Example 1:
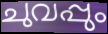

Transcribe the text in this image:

ചുവപ്പും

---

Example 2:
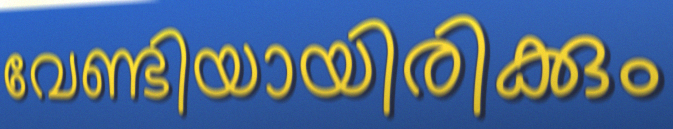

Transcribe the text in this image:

വേണ്ടിയായിരിക്കും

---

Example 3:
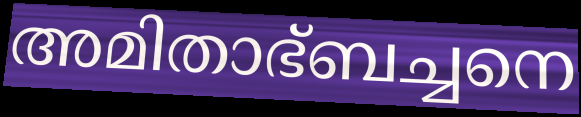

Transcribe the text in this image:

അമിതാഭ്ബച്ചനെ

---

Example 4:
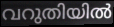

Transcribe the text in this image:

വറുതിയിൽ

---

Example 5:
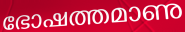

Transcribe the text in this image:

ഭോഷത്തമാണു